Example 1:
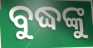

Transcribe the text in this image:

ବୁଦ୍ଧଙ୍କୁ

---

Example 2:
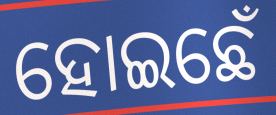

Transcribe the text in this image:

ହୋଇଛେଁ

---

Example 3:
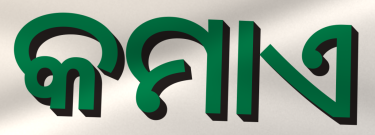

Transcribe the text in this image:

କମାଏ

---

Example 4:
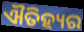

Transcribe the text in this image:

ଐତିହ୍ୟର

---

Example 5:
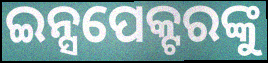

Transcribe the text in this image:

ଇନ୍ସପେକ୍ଟରଙ୍କୁ